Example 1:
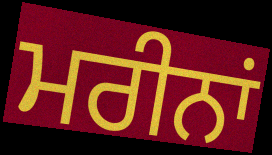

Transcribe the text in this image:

ਮਰੀਨਾਂ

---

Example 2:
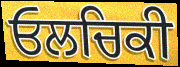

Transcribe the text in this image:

ਓਲਚਿਕੀ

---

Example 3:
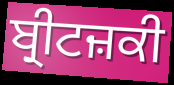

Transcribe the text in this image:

ਬ੍ਰੀਟਜ਼ਕੀ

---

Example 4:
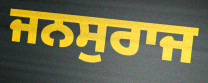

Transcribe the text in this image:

ਜਨਸੁਰਾਜ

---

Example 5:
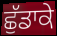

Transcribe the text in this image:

ਛੁੱਡਾਕੇ